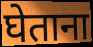
घेताना